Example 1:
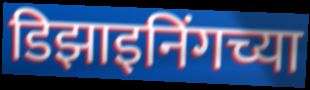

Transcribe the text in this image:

डिझाइनिंगच्या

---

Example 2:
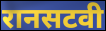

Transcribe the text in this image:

रानसटवी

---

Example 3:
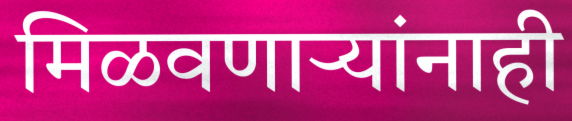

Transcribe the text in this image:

मिळवणाऱ्यांनाही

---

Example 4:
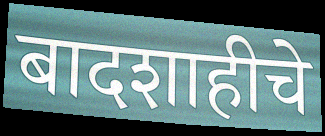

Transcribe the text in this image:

बादशाहीचे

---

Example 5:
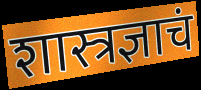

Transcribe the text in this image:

शास्त्रज्ञाचं